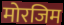
मोरजिम